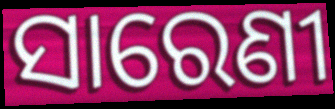
ସାରେଣୀ